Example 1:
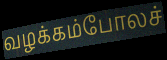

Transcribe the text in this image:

வழக்கம்போலச்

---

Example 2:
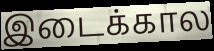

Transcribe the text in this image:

இடைக்கால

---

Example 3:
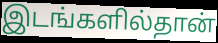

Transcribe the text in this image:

இடங்களில்தான்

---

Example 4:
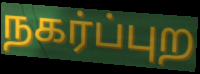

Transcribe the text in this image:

நகர்ப்புற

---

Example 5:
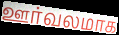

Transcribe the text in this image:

ஊர்வலமாக